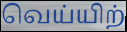
வெய்யிற்